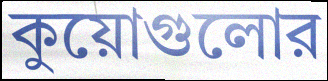
কুয়োগুলোর